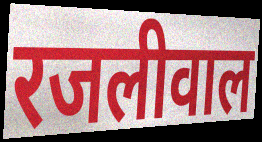
रजलीवाल